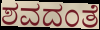
ಶವದಂತೆ